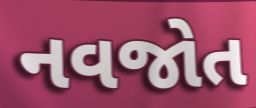
નવજોત